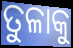
ତୁଳାକୁ